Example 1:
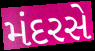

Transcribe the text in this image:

મંદરસે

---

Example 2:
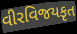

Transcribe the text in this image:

વીરવિજયકૃત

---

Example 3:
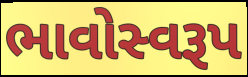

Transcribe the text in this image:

ભાવોસ્વરૂપ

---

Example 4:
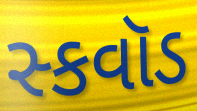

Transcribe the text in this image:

સ્કવૉડ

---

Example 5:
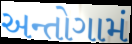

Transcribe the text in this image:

અન્તોગામં